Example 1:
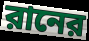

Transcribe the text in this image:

রানের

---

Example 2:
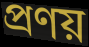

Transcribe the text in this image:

প্রণয়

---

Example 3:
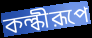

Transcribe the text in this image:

কল্কীরূপে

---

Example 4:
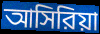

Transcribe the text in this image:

আসিরিয়া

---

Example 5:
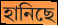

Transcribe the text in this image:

হানিছে